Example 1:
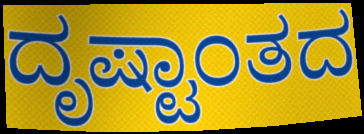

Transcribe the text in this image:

ದೃಷ್ಟಾಂತದ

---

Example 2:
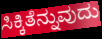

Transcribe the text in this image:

ಸಿಕ್ಕಿತೆನ್ನುವುದು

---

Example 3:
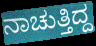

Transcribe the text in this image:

ನಾಚುತ್ತಿದ್ದ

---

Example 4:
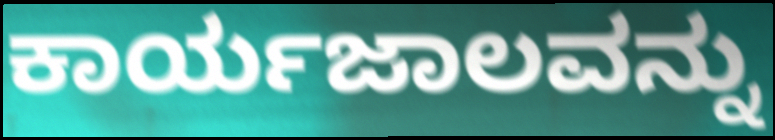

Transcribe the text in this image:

ಕಾರ್ಯಜಾಲವನ್ನು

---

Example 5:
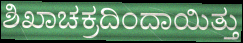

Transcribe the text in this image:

ಶಿಖಾಚಕ್ರದಿಂದಾಯಿತ್ತು